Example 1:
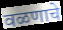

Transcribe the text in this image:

वळणाचे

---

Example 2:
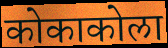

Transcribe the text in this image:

कोकाकोला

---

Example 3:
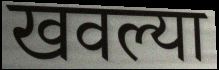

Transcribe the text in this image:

खवल्या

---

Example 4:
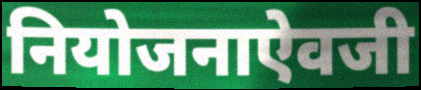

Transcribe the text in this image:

नियोजनाऐवजी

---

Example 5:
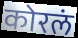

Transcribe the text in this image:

कोरलं